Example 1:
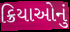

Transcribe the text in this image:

ક્રિયાઓનું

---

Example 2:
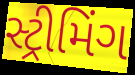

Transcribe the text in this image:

સ્ટ્રીમિંગ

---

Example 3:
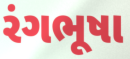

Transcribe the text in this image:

રંગભૂષા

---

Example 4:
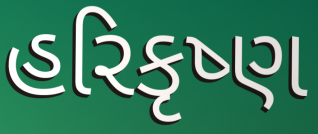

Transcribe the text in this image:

હરિકૃષ્ણ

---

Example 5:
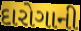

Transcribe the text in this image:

દારોગાની